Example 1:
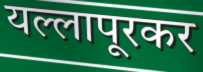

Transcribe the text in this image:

यल्लापूरकर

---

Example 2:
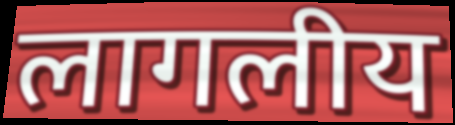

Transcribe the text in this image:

लागलीय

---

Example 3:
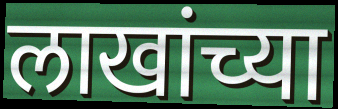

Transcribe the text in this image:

लाखांच्या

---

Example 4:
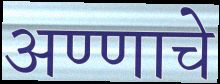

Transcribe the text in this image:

अण्णाचे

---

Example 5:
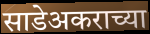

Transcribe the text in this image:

साडेअकराच्या